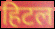
हिटल